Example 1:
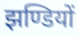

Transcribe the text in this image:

झण्डियों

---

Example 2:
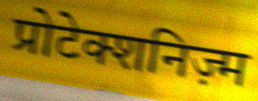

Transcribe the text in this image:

प्रोटेक्शनिज़्म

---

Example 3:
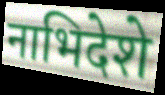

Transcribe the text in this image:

नाभिदेशे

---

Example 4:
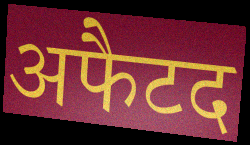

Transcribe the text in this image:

अफैटद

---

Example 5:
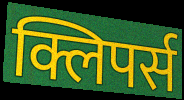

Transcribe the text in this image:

क्लिपर्स